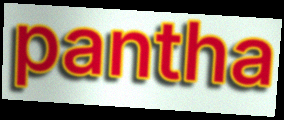
pantha